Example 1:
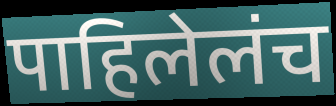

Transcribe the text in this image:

पाहिलेलंच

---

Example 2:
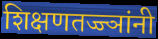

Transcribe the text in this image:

शिक्षणतज्ज्ञांनी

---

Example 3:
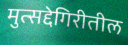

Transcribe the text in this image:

मुत्सद्देगिरीतील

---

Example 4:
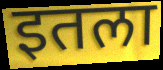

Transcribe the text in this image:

इतला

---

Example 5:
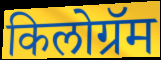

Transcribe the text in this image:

किलोग्रॅम